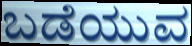
ಬಡೆಯುವ